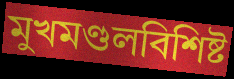
মুখমণ্ডলবিশিষ্ট